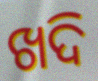
ଖଦି